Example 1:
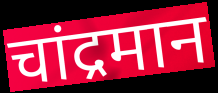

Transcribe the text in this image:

चांद्रमान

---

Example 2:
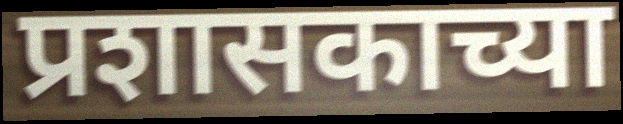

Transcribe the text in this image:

प्रशासकाच्या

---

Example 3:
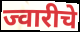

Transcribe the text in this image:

ज्वारीचे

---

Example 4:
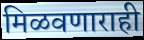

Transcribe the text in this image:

मिळवणाराही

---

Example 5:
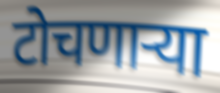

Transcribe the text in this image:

टोचणाऱ्या